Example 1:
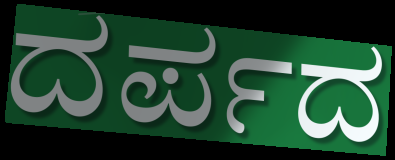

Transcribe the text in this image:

ದರ್ಪದ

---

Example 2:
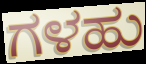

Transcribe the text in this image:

ಗಳಹು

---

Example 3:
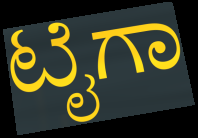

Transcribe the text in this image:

ಟೈಗಾ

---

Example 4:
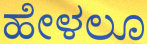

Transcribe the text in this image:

ಹೇಳಲೂ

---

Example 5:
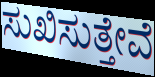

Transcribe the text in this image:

ಸುಖಿಸುತ್ತೇವೆ